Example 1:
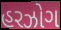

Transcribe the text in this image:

હરઝોગ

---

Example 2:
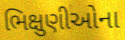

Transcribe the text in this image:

ભિક્ષુણીઓના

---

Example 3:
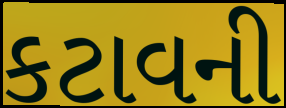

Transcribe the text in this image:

કટાવની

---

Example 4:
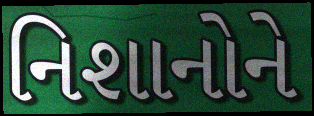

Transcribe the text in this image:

નિશાનોને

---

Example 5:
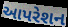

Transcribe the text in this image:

આપરેશન